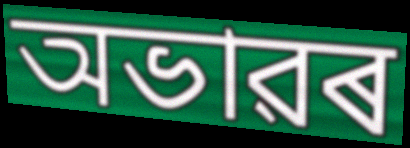
অভাৱৰ